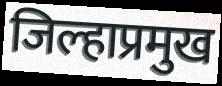
जिल्हाप्रमुख